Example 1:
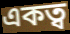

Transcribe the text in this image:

একত্ব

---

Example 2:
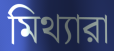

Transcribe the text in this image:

মিথ্যারা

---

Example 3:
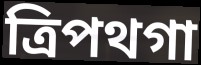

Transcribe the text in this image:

ত্রিপথগা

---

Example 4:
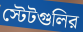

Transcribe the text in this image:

স্টেটগুলির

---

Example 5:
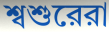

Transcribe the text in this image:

শ্বশুরেরা